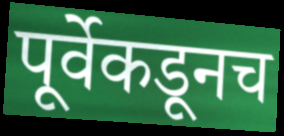
पूर्वेकडूनच